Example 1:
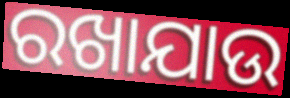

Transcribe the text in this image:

ରଖାଯାଉ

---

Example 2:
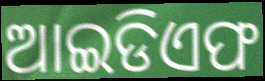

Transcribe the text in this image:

ଆଇଡିଏଫ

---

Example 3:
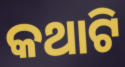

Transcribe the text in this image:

କଥାଟି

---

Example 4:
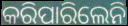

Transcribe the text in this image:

କରିପାରିଲେନି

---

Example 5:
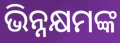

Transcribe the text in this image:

ଭିନ୍ନକ୍ଷମଙ୍କ